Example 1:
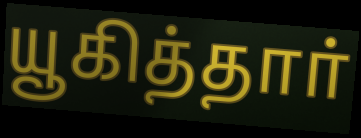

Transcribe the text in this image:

யூகித்தார்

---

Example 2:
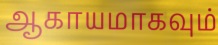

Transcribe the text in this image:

ஆகாயமாகவும்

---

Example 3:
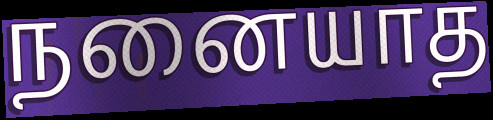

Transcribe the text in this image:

நனையாத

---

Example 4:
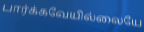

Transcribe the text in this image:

பார்க்கவேயில்லையே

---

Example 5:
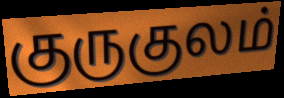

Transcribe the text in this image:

குருகுலம்